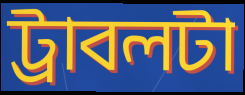
ট্রাবলটা